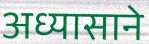
अध्यासाने